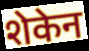
शेकेन